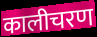
कालीचरण